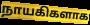
நாயகிகளாக